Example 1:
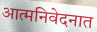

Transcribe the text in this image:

आत्मनिवेदनात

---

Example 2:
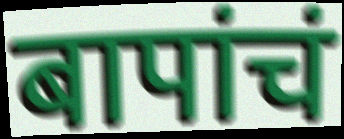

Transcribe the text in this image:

बापांचं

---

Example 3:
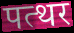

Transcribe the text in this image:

पत्थर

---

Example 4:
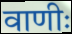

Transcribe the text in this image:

वाणीः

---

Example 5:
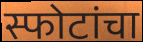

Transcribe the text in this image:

स्फोटांचा